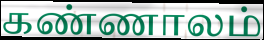
கண்ணாலம்